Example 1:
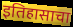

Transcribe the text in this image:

इतिहासाचा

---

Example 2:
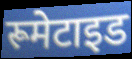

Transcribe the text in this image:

रूमेटाइड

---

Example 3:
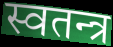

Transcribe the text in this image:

स्वतन्त्र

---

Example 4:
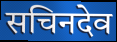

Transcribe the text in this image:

सचिनदेव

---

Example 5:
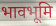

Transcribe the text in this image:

भावभूमि